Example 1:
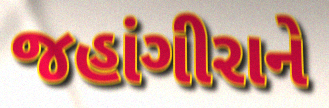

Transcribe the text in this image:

જહાંગીરાને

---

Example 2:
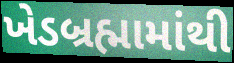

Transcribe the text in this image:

ખેડબ્રહ્મામાંથી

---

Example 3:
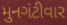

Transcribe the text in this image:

મુનગંટીવાર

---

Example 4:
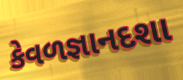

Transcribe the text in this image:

કેવળજ્ઞાનદશા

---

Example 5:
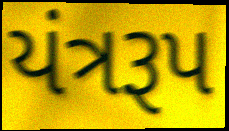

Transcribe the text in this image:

યંત્રરૂપ